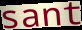
sant